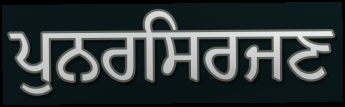
ਪੁਨਰਸਿਰਜਣ